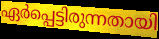
ഏർപ്പെട്ടിരുന്നതായി